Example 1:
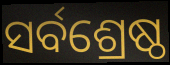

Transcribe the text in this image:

ସର୍ବଶ୍ରେଷ୍ଠ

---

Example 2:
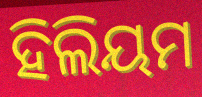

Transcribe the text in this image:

ହିଲିୟମ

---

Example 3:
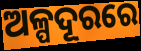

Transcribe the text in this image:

ଅଳ୍ପଦୂରରେ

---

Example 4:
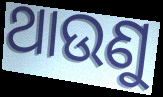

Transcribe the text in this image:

ଥାଉଣୁ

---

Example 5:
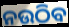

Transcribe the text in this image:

ନଉଠିବ